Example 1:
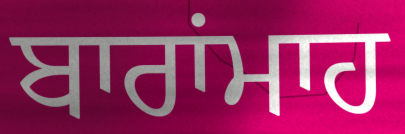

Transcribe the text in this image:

ਬਾਰਾਂਮਾਹ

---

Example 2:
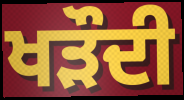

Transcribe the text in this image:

ਖੜੌਦੀ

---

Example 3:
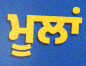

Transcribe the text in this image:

ਮੂਲਾਂ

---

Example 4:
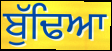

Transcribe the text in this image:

ਬੁੱਢਿਆ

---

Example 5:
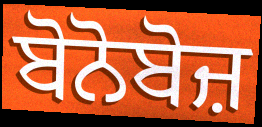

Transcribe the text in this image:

ਬੋਨੋਬੋਜ਼